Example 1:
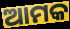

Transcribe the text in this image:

ଆମକ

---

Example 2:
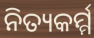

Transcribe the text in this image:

ନିତ୍ୟକର୍ମ୍ମ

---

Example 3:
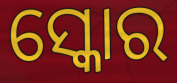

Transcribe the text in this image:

ସ୍କୋର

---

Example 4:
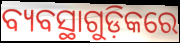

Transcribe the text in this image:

ବ୍ୟବସ୍ଥାଗୁଡ଼ିକରେ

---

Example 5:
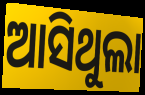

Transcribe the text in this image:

ଆସିଥୁଲା